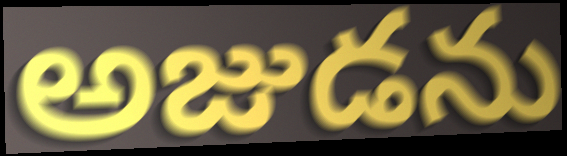
అజుడను